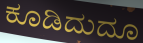
ಕೂಡಿದುದೂ